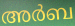
അർബ